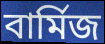
বাৰ্মিজ